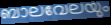
ബാലവേലയും